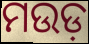
ମଉଡ଼